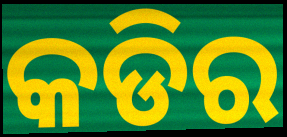
କଡିର